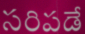
సరిపడే